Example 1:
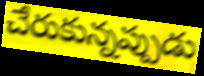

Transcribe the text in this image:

చేరుకున్నప్పుడు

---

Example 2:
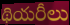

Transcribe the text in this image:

థియరీలు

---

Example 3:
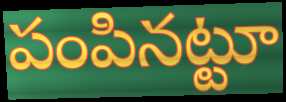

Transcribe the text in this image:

పంపినట్టూ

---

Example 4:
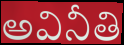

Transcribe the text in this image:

అవినీతి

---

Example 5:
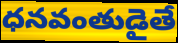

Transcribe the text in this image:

ధనవంతుడైతే